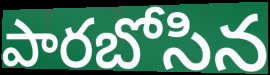
పారబోసిన